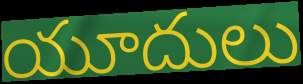
యూదులు